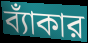
ব্যাঁকার